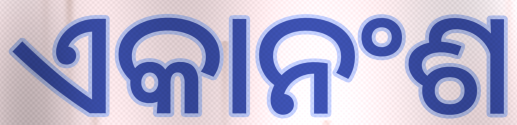
ଏକାନଂଶ